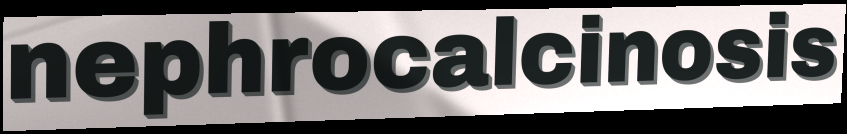
nephrocalcinosis